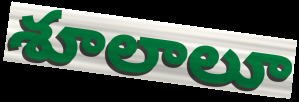
శూలాలూ